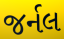
જર્નલ